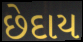
છેદાય